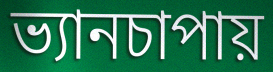
ভ্যানচাপায়